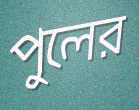
পুলের